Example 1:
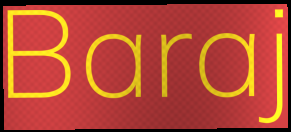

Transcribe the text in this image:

Baraj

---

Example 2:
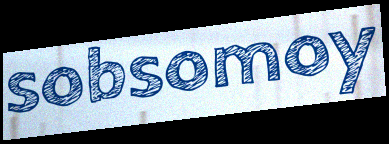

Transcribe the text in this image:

sobsomoy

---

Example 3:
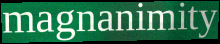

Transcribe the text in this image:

magnanimity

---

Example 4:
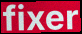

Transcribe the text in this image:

fixer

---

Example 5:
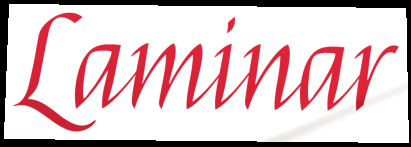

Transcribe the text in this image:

Laminar